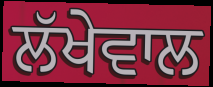
ਲੱਖੇਵਾਲ